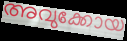
അവുക്കോയ